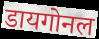
डायगोनल